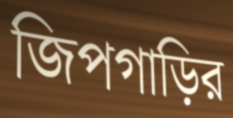
জিপগাড়ির